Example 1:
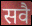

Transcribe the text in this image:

सवै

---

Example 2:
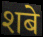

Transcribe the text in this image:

शबे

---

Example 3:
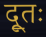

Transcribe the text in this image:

दू॒तः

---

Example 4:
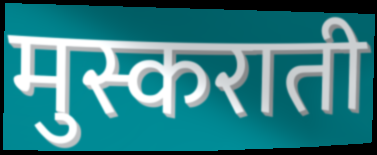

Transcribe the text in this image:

मुस्कराती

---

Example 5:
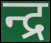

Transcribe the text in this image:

न्द्र